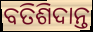
ବତିଶିଦାନ୍ତ